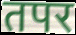
तपर